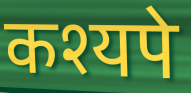
कश्यपे